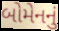
બોમેનનું